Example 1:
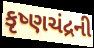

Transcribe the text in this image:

કૃષ્ણચંદ્રની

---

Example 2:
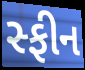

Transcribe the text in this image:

સ્ફીન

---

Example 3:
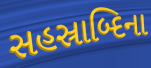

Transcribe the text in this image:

સહસ્રાબ્દિના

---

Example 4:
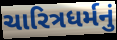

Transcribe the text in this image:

ચારિત્રધર્મનું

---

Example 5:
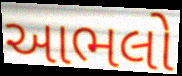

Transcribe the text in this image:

આભલો